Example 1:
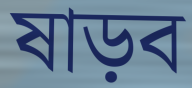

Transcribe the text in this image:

ষাড়ব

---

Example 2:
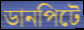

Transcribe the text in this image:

ডানপিটে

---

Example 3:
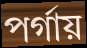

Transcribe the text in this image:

পর্গায়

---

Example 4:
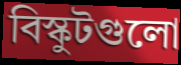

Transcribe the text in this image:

বিস্কুটগুলো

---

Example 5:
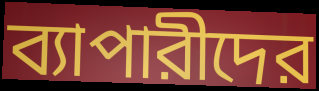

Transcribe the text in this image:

ব্যাপারীদের